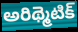
అరిథ్మెటిక్